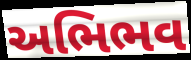
અભિભવ